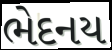
ભેદનય